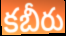
కబీరు